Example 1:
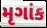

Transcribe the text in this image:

મૃગાંક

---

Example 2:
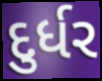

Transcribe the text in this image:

દુર્ધર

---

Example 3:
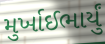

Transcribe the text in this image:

મુર્ખાઈભાર્યું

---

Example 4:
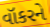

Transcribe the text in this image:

વૉકરને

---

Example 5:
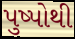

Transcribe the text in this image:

પુષ્પોથી